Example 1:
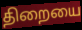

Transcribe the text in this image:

திறையை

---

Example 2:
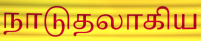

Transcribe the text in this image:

நாடுதலாகிய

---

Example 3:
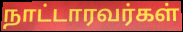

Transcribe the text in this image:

நாட்டாரவர்கள்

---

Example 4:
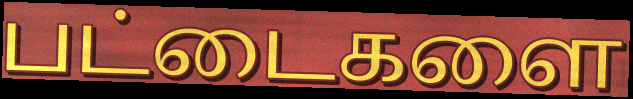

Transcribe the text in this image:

பட்டைகளை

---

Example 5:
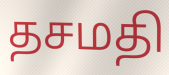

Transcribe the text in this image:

தசமதி